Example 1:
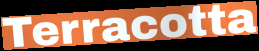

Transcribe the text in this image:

Terracotta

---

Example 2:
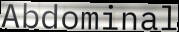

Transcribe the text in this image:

Abdominal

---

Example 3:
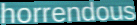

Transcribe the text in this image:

horrendous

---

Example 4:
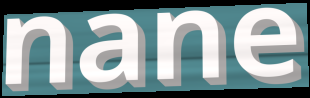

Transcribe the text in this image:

nane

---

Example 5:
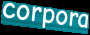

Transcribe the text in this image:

corpora